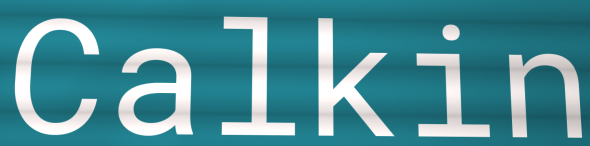
Calkin